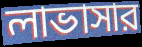
লাভাসার